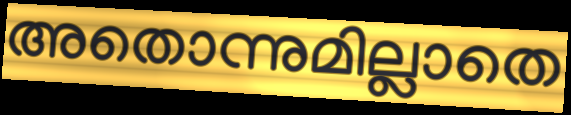
അതൊന്നുമില്ലാതെ